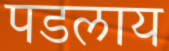
पडलाय